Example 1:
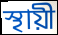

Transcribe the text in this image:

স্থায়ী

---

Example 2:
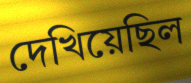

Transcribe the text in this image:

দেখিয়েছিল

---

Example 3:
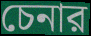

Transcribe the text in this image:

চেনার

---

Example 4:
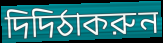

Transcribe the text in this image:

দিদিঠাকরুন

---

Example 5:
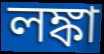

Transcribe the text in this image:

লঙ্কা